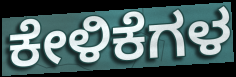
ಕೇಳಿಕೆಗಳ